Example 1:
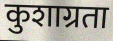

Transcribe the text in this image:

कुशाग्रता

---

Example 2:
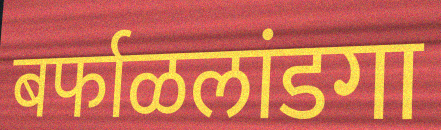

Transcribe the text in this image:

बर्फाळलांडगा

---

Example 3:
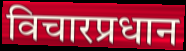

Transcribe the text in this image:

विचारप्रधान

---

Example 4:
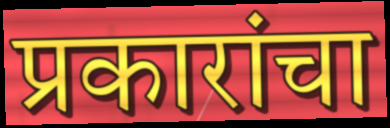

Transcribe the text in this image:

प्रकारांचा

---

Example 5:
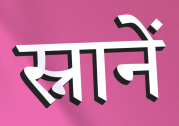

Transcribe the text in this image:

स्नानें